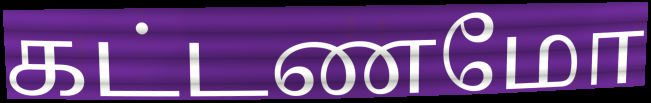
கட்டணமோ